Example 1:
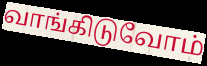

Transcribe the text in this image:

வாங்கிடுவோம்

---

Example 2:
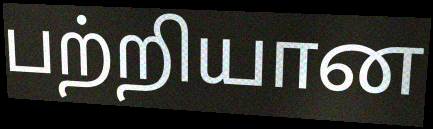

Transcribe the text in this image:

பற்றியான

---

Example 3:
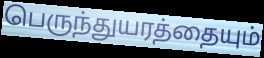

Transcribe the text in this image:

பெருந்துயரத்தையும்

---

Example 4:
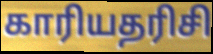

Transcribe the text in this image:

காரியதரிசி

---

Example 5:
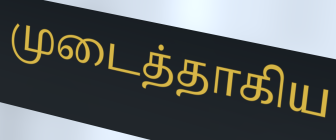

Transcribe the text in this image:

முடைத்தாகிய